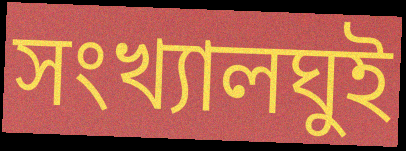
সংখ্যালঘুই